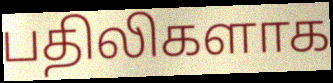
பதிலிகளாக